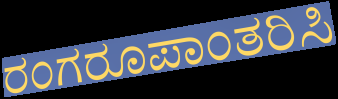
ರಂಗರೂಪಾಂತರಿಸಿ